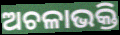
ଅଚଳାଭକ୍ତି